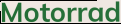
Motorrad